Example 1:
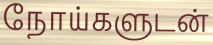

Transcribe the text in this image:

நோய்களுடன்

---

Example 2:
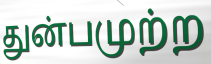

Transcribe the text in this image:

துன்பமுற்ற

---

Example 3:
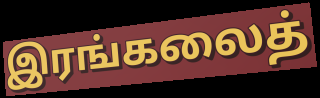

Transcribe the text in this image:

இரங்கலைத்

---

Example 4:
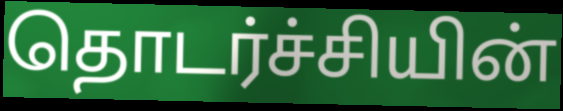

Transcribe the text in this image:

தொடர்ச்சியின்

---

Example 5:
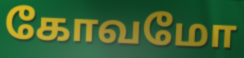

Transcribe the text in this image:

கோவமோ